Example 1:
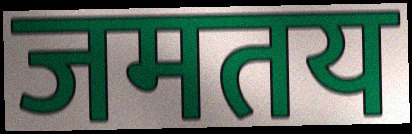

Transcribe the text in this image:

जमतय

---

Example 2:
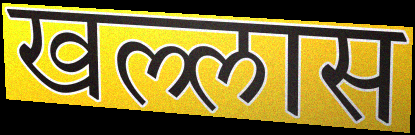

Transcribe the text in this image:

खल्लास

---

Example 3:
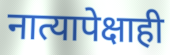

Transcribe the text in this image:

नात्यापेक्षाही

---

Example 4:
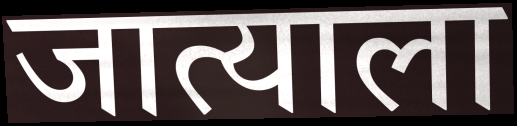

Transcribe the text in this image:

जात्याला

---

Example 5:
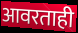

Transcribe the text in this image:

आवरताही